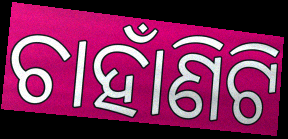
ଚାହାଁଣିଟି